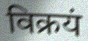
विक्रयं